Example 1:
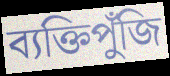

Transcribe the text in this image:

ব্যক্তিপুঁজি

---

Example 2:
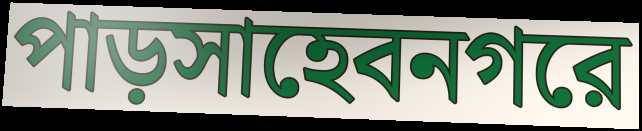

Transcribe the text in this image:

পাড়সাহেবনগরে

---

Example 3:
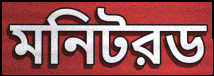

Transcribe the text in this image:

মনিটরড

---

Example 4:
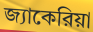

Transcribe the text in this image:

জ্যাকেরিয়া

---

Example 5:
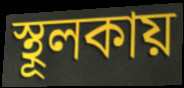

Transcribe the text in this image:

স্থূলকায়